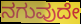
ನಗುವುದೇ